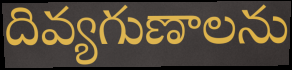
దివ్యగుణాలను